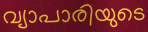
വ്യാപാരിയുടെ